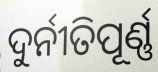
ଦୁର୍ନୀତିପୂର୍ଣ୍ଣ